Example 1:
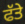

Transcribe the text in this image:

ਫੱਤੇ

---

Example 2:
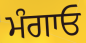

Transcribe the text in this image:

ਮੰਗਾਓ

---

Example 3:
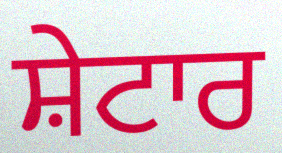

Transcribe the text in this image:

ਸ਼ੇਟਾਰ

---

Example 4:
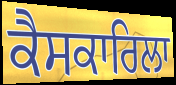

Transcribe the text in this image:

ਕੈਸਕਾਰਿਲਾ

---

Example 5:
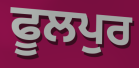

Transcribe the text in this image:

ਫੂਲਪੁਰ